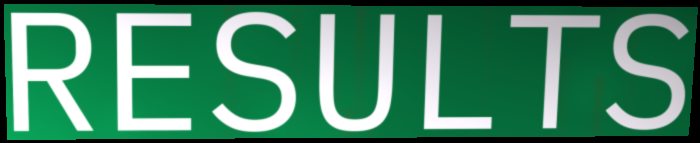
RESULTS